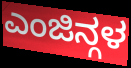
ಎಂಜಿನ್ಗಳ